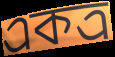
একত্ৰ